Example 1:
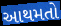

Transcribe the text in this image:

આથમતો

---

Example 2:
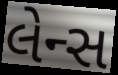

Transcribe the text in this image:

લેન્સ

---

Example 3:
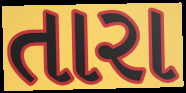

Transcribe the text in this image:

તારા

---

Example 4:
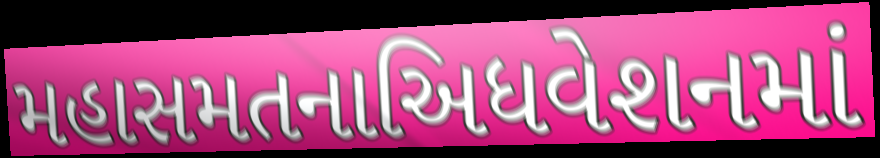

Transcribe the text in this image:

મહાસમતનાઅિધવેશનમાં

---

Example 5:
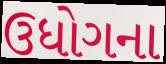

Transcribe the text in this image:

ઉધોગના